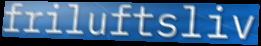
friluftsliv